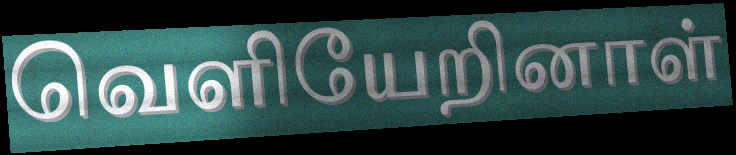
வெளியேறினாள்